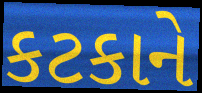
કટકાને